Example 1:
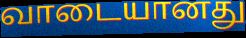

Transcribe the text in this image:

வாடையானது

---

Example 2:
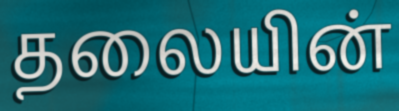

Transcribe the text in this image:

தலையின்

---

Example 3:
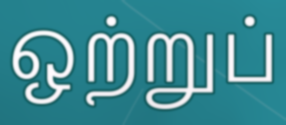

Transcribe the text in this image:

ஒற்றுப்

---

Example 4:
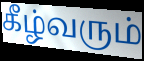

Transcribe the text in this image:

கீழ்வரும்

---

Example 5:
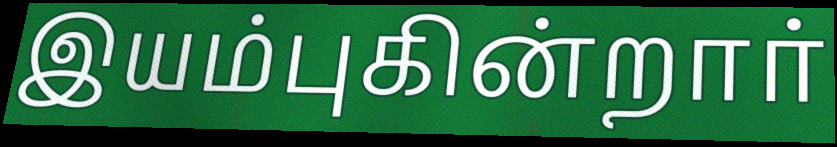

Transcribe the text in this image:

இயம்புகின்றார்